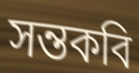
সন্তকবি